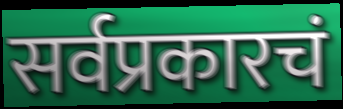
सर्वप्रकारचं